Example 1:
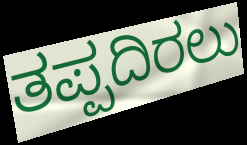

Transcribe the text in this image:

ತಪ್ಪದಿರಲು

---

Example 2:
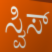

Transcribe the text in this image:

ಸ್ವಿಸ್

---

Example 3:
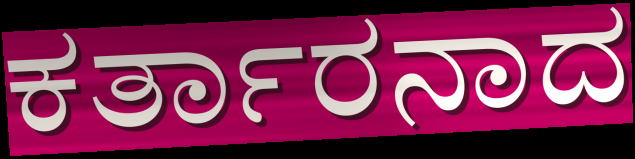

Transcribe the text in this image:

ಕರ್ತಾರನಾದ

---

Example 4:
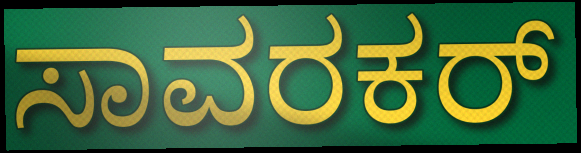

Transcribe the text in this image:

ಸಾವರಕರ್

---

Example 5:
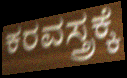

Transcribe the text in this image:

ಕರವಸ್ತ್ರಕ್ಕೆ